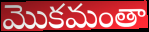
మొకమంతా